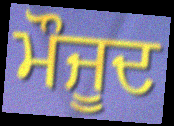
ਮੌਜੂਦ